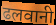
ढलवानी